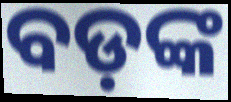
ବଡ଼ଙ୍କ